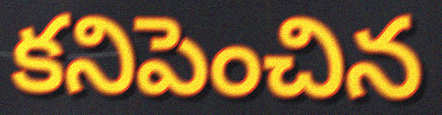
కనిపెంచిన